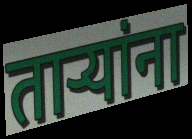
तार्‍यांना